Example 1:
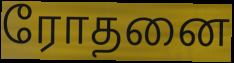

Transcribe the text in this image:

ரோதனை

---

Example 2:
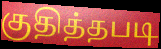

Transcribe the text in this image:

குதித்தபடி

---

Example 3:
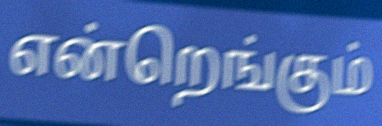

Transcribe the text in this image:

என்றெங்கும்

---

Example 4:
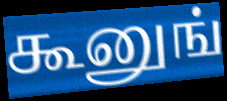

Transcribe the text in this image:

கூனுங்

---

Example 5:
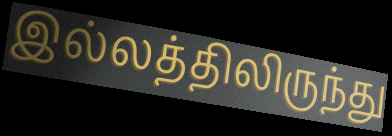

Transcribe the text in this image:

இல்லத்திலிருந்து